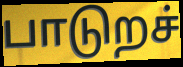
பாடுறச்